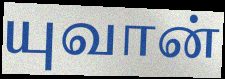
யுவான்